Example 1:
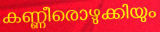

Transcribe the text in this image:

കണ്ണീരൊഴുക്കിയും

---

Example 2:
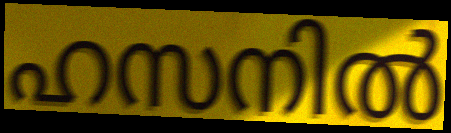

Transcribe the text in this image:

ഹസനിൽ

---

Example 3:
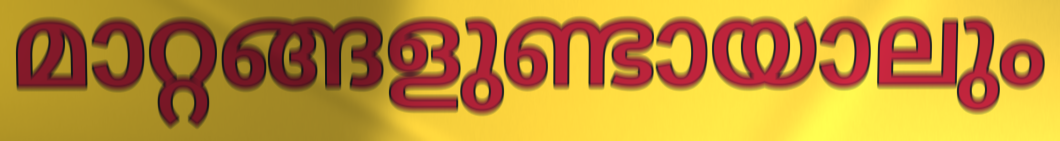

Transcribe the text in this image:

മാറ്റങ്ങളുണ്ടായാലും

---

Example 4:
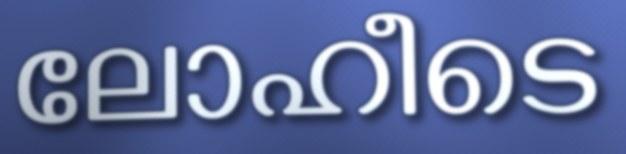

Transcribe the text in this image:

ലോഹീടെ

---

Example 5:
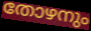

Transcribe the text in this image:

തോഴനും